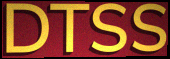
DTSS